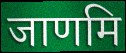
जाणमि